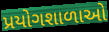
પ્રયોગશાળાઓ